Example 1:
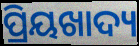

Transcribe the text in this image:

ପ୍ରିୟଖାଦ୍ୟ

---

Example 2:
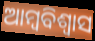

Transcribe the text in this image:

ଆମ୍ବବିଶ୍ଵାସ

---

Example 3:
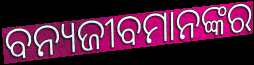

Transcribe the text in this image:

ବନ୍ୟଜୀବମାନଙ୍କର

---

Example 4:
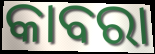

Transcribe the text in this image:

କାବରା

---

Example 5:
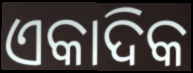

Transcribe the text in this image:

ଏକାଦିକ